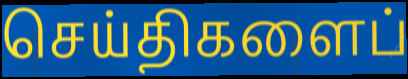
செய்திகளைப்